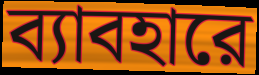
ব্যাবহারে